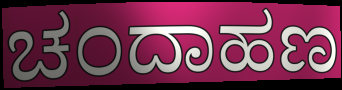
ಚಂದಾಹಣ